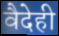
वैदेही